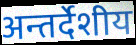
अन्तर्देशीय